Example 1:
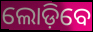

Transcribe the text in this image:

ଲୋଡ଼ିବେ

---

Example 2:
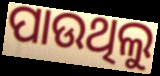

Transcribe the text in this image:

ପାଉଥିଲୁ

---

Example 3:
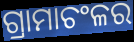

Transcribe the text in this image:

ଗ୍ରାମାଚଂଳର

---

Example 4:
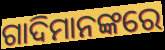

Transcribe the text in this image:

ଗାଦିମାନଙ୍କରେ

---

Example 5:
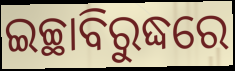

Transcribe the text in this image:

ଇଚ୍ଛାବିରୁଦ୍ଧରେ